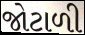
જોટાળી